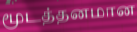
மூடத்தனமான